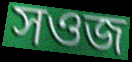
সওজ